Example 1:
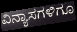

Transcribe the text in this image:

ವಿನ್ಯಾಸಗಳಿಗೂ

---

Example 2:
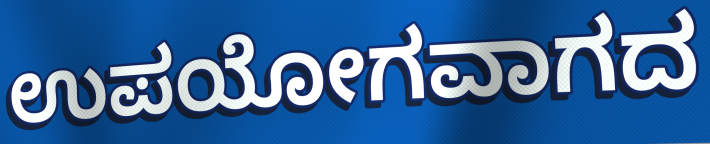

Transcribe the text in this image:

ಉಪಯೋಗವಾಗದ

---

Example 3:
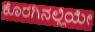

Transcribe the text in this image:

ಕೊರಗಿನಲ್ಲಿಯೇ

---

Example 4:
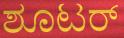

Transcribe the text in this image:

ಶೂಟರ್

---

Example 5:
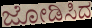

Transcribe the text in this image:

ಜೋಡಿಸಿದ